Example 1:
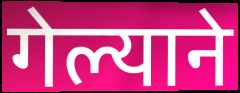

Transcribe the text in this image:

गेल्याने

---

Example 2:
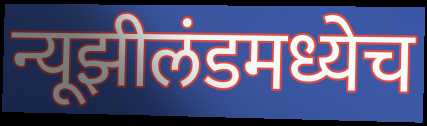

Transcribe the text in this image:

न्यूझीलंडमध्येच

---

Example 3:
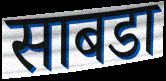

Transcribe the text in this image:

साबडा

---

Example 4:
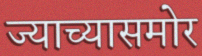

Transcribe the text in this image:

ज्याच्यासमोर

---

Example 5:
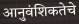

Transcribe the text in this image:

आनुवंशिकतेचे